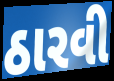
ઠારવી